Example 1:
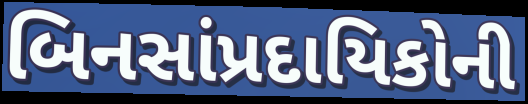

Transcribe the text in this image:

બિનસાંપ્રદાયિકોની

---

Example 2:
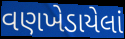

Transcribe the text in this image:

વણખેડાયેલાં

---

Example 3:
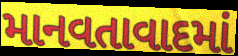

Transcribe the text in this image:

માનવતાવાદમાં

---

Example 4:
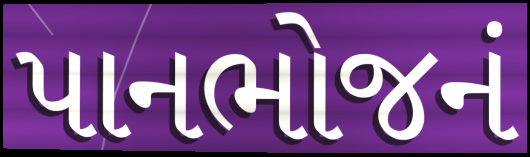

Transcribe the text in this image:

પાનભોજનં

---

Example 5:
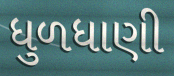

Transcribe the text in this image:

ધુળધાણી